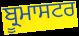
ਬ੍ਰੂਮਾਸਟਰ